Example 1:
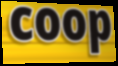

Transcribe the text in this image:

coop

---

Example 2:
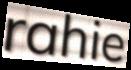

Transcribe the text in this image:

rahie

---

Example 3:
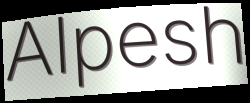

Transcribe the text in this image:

Alpesh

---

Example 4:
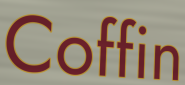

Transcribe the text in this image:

Coffin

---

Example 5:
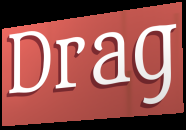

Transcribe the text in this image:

Drag